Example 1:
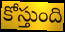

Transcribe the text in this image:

కోస్తుంది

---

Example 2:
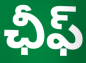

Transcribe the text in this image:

ఛీఫ్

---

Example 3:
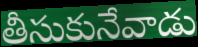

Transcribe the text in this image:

తీసుకునేవాడు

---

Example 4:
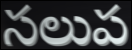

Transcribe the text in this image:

సలుప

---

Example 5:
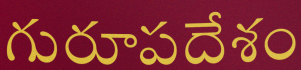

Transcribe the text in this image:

గురూపదేశం